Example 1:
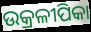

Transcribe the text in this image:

ଉକ୍ରଳୀପିକା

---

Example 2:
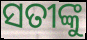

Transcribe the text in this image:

ସତୀଙ୍କୁ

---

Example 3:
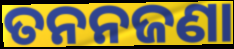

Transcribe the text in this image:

ତନନଜଣା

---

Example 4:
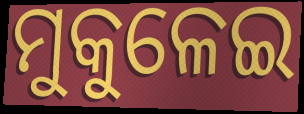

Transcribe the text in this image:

ମୁକୁଳେଇ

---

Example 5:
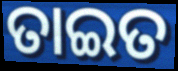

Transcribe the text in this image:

ତାଇତ